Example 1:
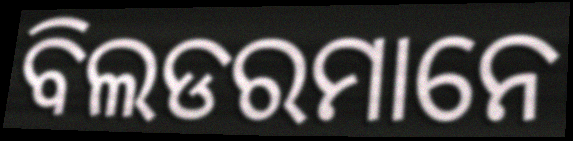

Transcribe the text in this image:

ବିଲଡରମାନେ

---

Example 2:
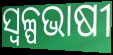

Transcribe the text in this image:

ସ୍ୱଳ୍ପଭାଷୀ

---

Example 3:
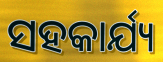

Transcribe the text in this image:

ସହକାର୍ଯ୍ୟ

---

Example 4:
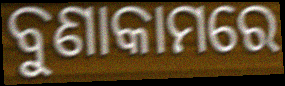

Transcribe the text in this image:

ବୁଣାକାମରେ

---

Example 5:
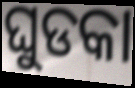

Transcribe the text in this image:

ଘୁଡକା